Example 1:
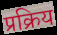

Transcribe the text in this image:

प्रक्रिय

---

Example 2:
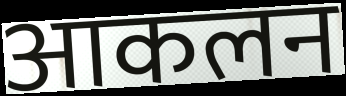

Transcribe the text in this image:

आकलन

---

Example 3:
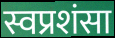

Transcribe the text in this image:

स्वप्रशंसा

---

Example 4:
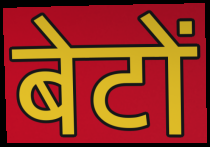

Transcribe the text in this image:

बेटों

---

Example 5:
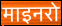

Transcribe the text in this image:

माइनरो